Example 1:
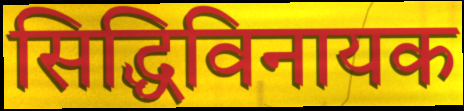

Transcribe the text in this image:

सिद्धिविनायक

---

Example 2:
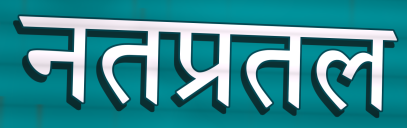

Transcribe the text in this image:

नतप्रतल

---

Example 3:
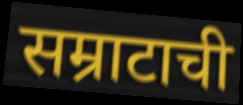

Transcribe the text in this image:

सम्राटाची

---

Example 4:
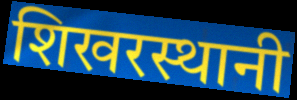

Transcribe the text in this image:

शिखरस्थानी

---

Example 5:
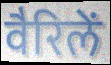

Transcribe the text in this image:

वैरिलें